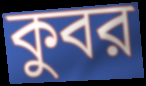
কুবর